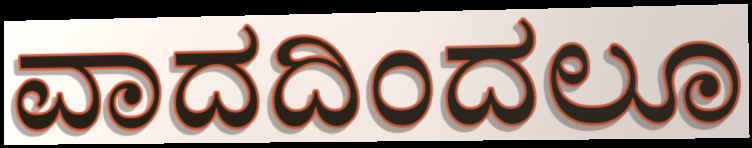
ವಾದದಿಂದಲೂ